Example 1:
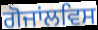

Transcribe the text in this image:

ਗੋਜਾਂਲਵਿਸ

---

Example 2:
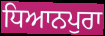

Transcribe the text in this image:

ਧਿਆਨਪੁਰਾ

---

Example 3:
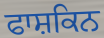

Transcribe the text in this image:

ਫਾਸ਼ਕਿਨ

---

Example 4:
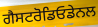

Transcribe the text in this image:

ਗੈਸਟਰੋਡਿਓਡੇਨਲ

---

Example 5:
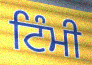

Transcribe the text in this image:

ਟਿੰਮੀ